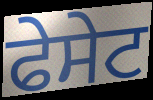
ਫੇਸੇਟ